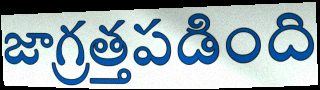
జాగ్రత్తపడింది